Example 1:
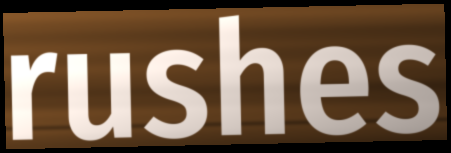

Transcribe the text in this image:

rushes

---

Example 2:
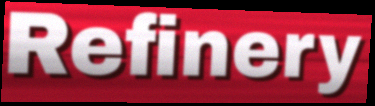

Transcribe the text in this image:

Refinery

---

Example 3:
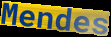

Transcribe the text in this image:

Mendes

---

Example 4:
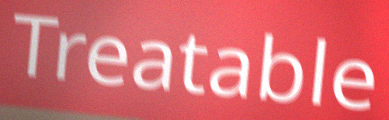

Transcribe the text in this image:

Treatable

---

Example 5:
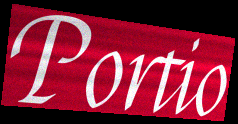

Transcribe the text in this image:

Portio